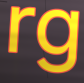
rg